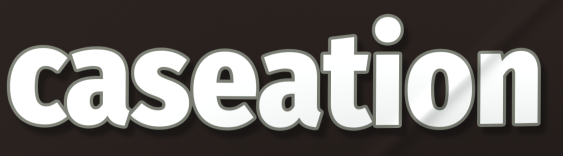
caseation